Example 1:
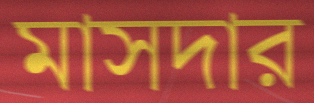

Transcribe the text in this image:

মাসদার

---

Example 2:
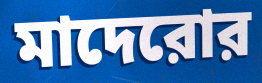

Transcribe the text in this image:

মাদেরোর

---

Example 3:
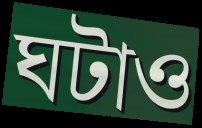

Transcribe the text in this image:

ঘটাও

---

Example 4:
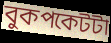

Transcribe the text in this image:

বুকপকেটটা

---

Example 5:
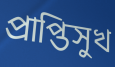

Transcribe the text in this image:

প্রাপ্তিসুখ